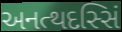
અનત્થદસ્સિં